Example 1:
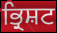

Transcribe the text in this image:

ਭ੍ਰਿਸ਼ਟ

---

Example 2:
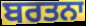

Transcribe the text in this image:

ਬਰਤਨਾ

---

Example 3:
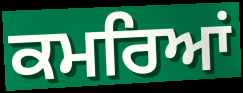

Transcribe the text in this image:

ਕਮਰਿਆਂ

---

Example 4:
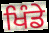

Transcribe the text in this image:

ਖਿੰਡੇ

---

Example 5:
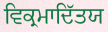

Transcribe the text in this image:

ਵਿਕ੍ਰਮਾਦਿੱਤਯ